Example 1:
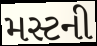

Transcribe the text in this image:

મસ્ટની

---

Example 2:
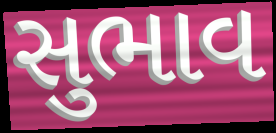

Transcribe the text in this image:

સુભાવ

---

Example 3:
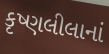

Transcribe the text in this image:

કૃષ્ણલીલાનાં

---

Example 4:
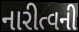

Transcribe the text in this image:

નારીત્વની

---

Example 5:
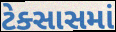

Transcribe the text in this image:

ટેક્સાસમાં